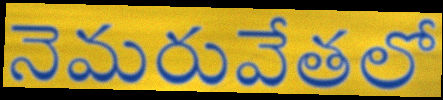
నెమరువేతలో